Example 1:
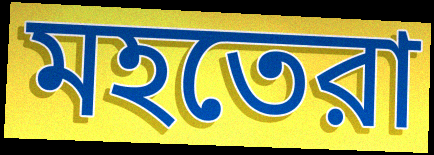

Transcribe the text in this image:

মহতেরা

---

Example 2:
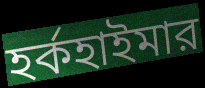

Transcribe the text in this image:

হর্কহাইমার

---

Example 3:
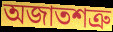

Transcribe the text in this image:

অজাতশত্রু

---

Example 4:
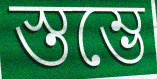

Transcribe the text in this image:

স্তম্ভে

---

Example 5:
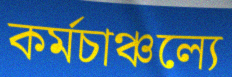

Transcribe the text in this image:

কর্মচাঞ্চল্যে